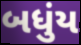
બધુંય